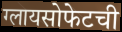
ग्लायसोफेटची